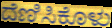
ದೆಣಿಸಿಕೊಳು